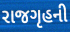
રાજગૃહની